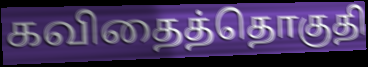
கவிதைத்தொகுதி